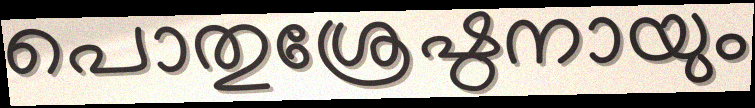
പൊതുശ്രേഷ്ഠനായും